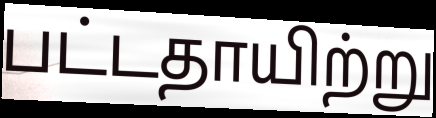
பட்டதாயிற்று